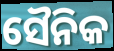
ସୈନିକ